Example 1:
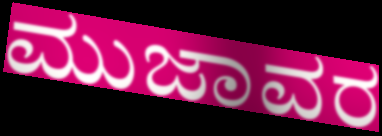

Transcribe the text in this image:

ಮುಜಾವರ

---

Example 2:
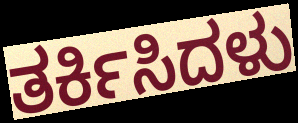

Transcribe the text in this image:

ತರ್ಕಿಸಿದಳು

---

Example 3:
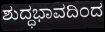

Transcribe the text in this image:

ಶುದ್ಧಭಾವದಿಂದ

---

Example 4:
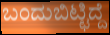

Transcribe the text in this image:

ಬಂದುಬಿಟ್ಟಿದ್ದೆ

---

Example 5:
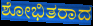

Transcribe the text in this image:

ಶೋಭಿತರಾದ